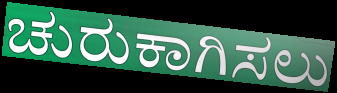
ಚುರುಕಾಗಿಸಲು